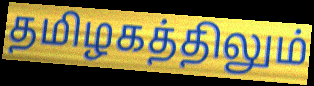
தமிழகத்திலும்